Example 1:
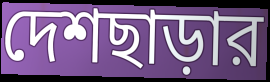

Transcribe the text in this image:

দেশছাড়ার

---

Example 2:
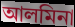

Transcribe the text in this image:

আলমিনা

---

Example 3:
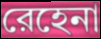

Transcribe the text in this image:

রেহেনা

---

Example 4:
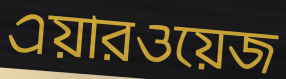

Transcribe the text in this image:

এয়ারওয়েজ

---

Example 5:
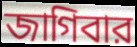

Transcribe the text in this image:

জাগিবার